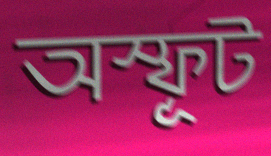
অস্ফূট